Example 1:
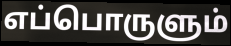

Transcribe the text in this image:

எப்பொருளும்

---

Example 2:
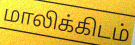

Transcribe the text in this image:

மாலிக்கிடம்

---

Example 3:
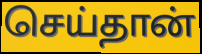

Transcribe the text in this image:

செய்தான்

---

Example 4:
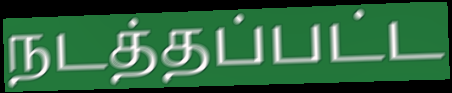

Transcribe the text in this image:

நடத்தப்பட்ட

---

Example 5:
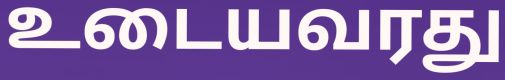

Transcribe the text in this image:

உடையவரது